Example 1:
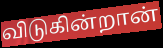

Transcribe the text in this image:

விடுகின்றான்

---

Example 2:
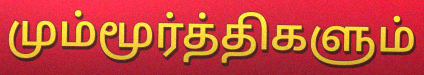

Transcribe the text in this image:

மும்மூர்த்திகளும்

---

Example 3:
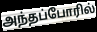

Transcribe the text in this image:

அந்தப்போரில்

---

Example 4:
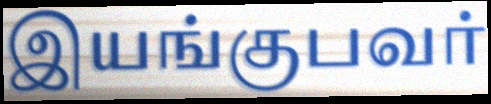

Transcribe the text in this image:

இயங்குபவர்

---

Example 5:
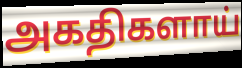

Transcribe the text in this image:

அகதிகளாய்